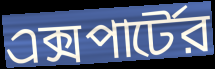
এক্সপার্টের